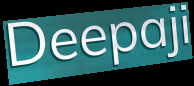
Deepaji